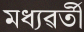
মধ্যৱৰ্তী